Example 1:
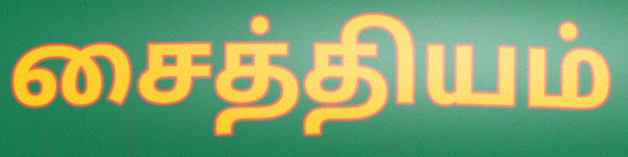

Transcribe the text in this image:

சைத்தியம்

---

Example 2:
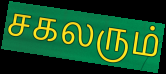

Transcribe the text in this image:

சகலரும்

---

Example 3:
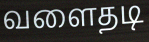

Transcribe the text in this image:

வளைதடி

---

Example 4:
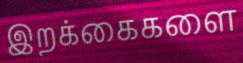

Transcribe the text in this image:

இறக்கைகளை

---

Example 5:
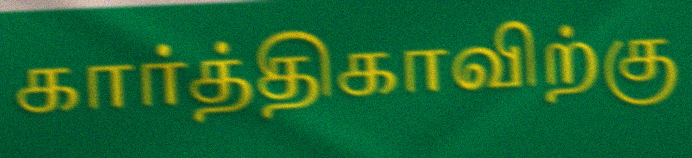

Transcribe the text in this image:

கார்த்திகாவிற்கு